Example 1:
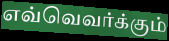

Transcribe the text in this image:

எவ்வெவர்க்கும்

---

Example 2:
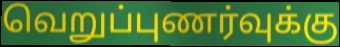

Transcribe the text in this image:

வெறுப்புணர்வுக்கு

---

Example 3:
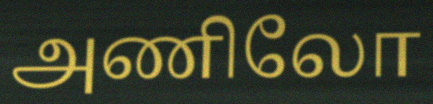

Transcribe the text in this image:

அணிலோ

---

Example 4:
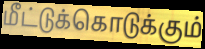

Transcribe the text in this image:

மீட்டுக்கொடுக்கும்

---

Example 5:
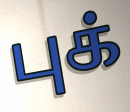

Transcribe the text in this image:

புக்